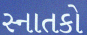
સ્નાતકો